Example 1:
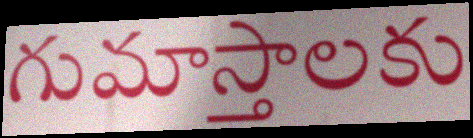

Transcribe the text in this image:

గుమాస్తాలకు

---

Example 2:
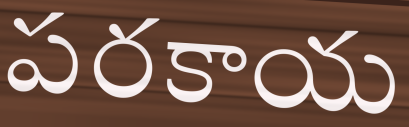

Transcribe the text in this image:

పరకాయ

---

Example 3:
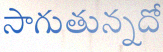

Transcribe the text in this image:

సాగుతున్నదో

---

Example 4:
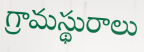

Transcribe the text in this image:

గ్రామస్థురాలు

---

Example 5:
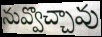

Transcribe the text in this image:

నువ్వొచ్చావు